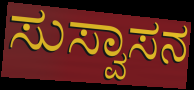
ಸುಸ್ವಾಸನ